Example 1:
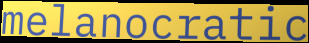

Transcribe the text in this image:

melanocratic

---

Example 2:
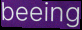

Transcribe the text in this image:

beeing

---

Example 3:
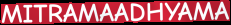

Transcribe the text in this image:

MITRAMAADHYAMA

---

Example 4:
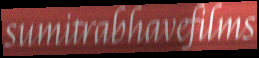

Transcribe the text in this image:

sumitrabhavefilms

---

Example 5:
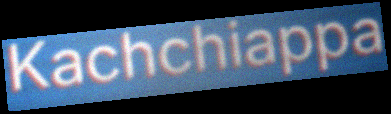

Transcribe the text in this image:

Kachchiappa